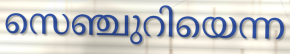
സെഞ്ചുറിയെന്ന